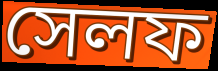
সেলফ